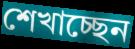
শেখাচ্ছেন